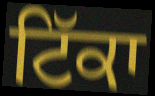
ਟਿੱਕਾ